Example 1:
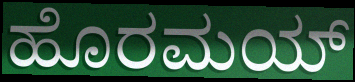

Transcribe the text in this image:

ಹೊರಮಯ್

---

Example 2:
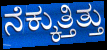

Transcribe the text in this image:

ನೆಕ್ಕುತ್ತಿತ್ತು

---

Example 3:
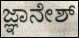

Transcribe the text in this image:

ಜ್ಞಾನೇಶ್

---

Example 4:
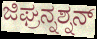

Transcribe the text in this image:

ಜಿಘ್ರನ್ನಶ್ನನ್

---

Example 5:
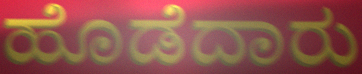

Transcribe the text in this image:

ಹೊಡೆದಾರು